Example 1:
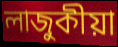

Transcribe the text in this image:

লাজুকীয়া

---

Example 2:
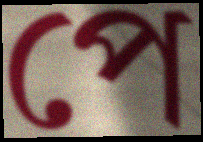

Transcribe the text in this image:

পে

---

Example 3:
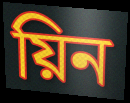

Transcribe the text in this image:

য়িন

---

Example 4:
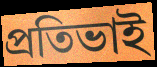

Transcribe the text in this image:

প্ৰতিভাই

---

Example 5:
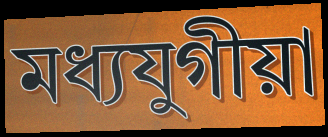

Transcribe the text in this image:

মধ্যযুগীয়া